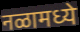
नळामध्ये